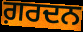
ਗ਼ਰਦਨ